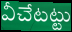
వీచేటట్టు